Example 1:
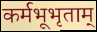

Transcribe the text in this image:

कर्मभूभृताम्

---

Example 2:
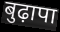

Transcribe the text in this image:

बुढ़ापा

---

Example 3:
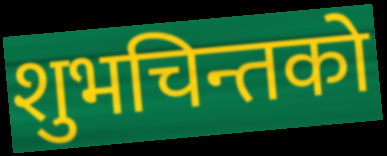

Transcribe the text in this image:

शुभचिन्तको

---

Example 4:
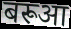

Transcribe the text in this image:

बरूआ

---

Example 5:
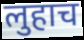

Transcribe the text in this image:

लुहाच